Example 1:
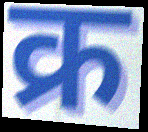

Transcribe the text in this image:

क्र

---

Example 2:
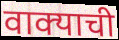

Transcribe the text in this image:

वाक्याची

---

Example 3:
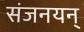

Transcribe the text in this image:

संजनयन्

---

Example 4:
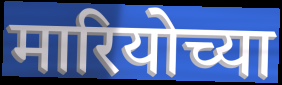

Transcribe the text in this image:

मारियोच्या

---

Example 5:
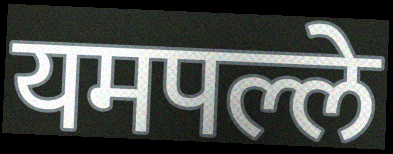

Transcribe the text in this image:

यमपल्ले